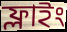
ফ্লাইং